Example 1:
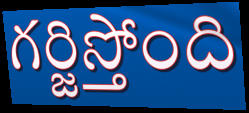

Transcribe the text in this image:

గర్జిస్తోంది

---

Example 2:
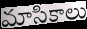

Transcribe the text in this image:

మాసికాలు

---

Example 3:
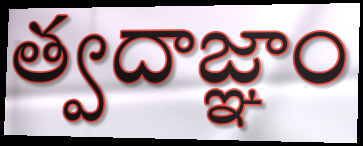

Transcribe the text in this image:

త్వదాజ్ఞాం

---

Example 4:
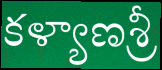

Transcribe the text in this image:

కళ్యాణశ్రీ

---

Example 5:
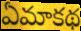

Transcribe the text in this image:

ఏమాకథ